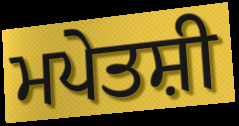
ਮਪੇਤਸ਼ੀ